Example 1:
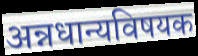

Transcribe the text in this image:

अन्नधान्यविषयक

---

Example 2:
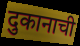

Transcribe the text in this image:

दुकानाची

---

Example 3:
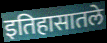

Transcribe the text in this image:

इतिहासातले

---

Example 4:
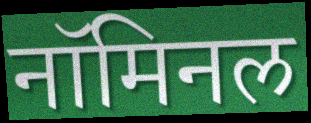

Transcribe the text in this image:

नॉमिनल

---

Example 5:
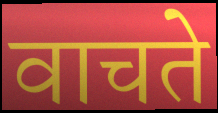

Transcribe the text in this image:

वाचते